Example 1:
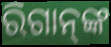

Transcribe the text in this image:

ରିଗାନ୍‌ଙ୍କ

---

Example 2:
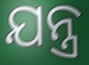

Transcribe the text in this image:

ଯନ୍ତ୍ର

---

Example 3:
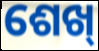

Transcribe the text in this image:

ଶେଖ୍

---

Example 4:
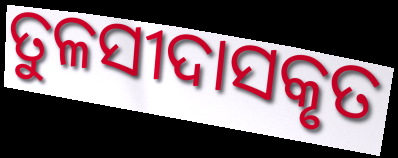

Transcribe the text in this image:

ତୁଳସୀଦାସକୃତ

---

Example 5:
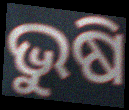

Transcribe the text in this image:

ଭୁଷି